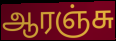
ஆரஞ்சு